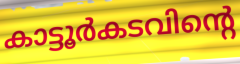
കാട്ടൂർകടവിന്റെ